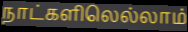
நாட்களிலெல்லாம்